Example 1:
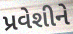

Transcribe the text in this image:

પ્રવેશીને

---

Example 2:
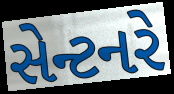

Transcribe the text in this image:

સેન્ટનરે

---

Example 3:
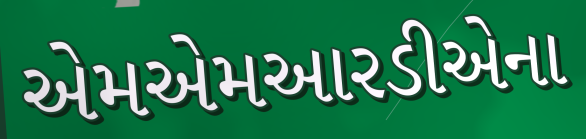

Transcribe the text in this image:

એમએમઆરડીએના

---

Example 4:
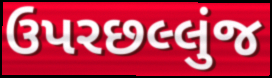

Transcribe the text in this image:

ઉપરછલ્લુંજ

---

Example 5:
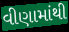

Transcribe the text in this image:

વીણામાંથી